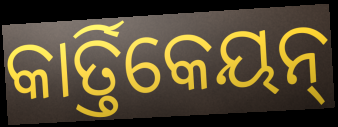
କାର୍ତ୍ତିକେୟନ୍